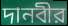
দানবীর